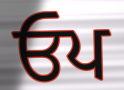
ਓਪ